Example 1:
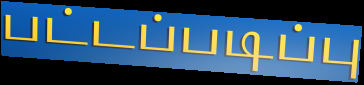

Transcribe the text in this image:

பட்டப்படிப்பு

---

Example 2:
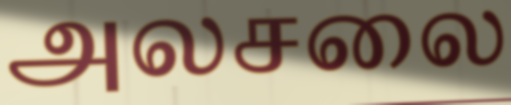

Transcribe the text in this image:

அலசலை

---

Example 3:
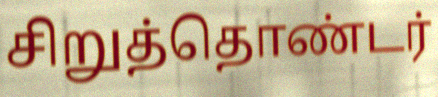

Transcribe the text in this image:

சிறுத்தொண்டர்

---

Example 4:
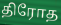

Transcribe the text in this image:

திரோத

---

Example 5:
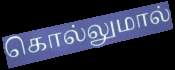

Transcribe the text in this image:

கொல்லுமால்